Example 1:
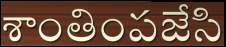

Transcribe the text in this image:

శాంతింపజేసి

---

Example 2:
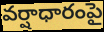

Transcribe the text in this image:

వర్షాధారంపై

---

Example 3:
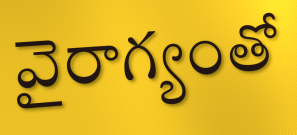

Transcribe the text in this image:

వైరాగ్యంతో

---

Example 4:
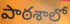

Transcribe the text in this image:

పాఠశాలో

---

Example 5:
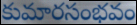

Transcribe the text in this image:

కుమారసంభవం